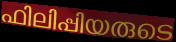
ഫിലിപ്പിയരുടെ